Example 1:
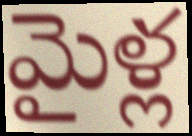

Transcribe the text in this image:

మైళ్ల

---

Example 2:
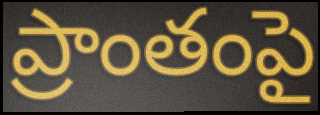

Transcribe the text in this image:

ప్రాంతంపై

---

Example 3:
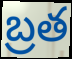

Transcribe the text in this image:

బ్రత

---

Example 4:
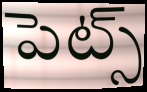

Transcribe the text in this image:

పెట్స్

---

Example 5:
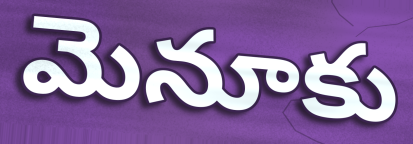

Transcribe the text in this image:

మెనూకు